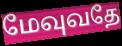
மேவுவதே